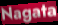
Nagata